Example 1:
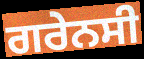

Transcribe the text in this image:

ਗਰੇਨਸੀ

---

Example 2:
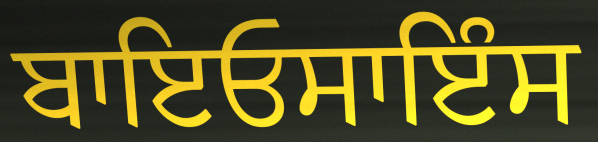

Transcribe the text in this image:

ਬਾਇਓਸਾਇੰਸ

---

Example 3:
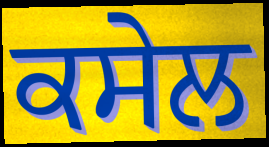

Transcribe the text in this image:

ਕਸੇਲ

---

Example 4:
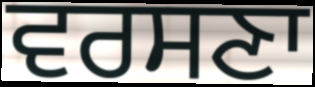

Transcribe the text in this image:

ਵਰਸਣਾ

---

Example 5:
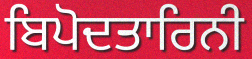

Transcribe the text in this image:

ਬਿਪੋਦਤਾਰਿਨੀ